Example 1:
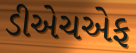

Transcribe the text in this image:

ડીએચએફ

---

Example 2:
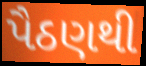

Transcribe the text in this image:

પૈઠણથી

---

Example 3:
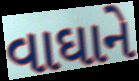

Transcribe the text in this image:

વાઘાને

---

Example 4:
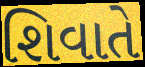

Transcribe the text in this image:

શિવાતે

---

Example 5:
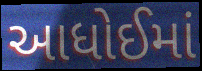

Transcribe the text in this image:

આધોઈમાં